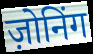
ज़ोनिंग